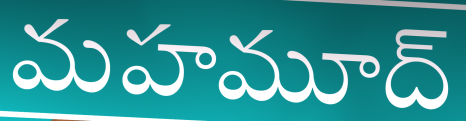
మహమూద్